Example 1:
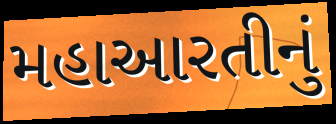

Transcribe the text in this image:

મહાઆરતીનું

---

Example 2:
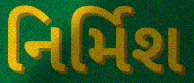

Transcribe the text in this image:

નિર્મિશ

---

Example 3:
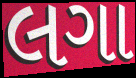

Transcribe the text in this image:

લગા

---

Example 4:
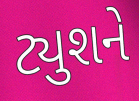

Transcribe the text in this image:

ટ્યુશને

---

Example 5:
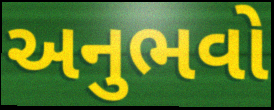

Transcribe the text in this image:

અનુભવો